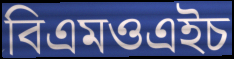
বিএমওএইচ